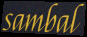
sambal